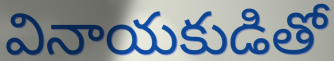
వినాయకుడితో